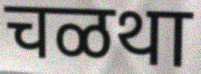
चळथा